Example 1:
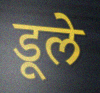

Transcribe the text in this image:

डूले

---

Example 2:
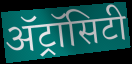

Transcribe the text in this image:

ॲट्रॉसिटी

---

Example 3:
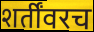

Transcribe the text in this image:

शर्तींवरच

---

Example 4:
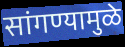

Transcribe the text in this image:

सांगण्यामुळे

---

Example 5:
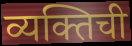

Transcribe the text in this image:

व्यक्तिची